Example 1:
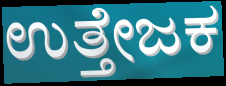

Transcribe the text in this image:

ಉತ್ತೇಜಕ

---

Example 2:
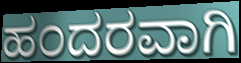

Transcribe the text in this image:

ಹಂದರವಾಗಿ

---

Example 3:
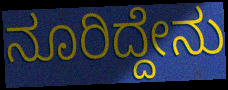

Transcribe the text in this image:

ನೂರಿದ್ದೇನು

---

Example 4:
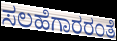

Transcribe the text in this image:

ಸಲಹೆಗಾರರಂತೆ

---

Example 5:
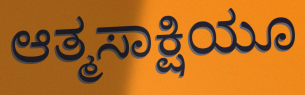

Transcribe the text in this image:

ಆತ್ಮಸಾಕ್ಷಿಯೂ